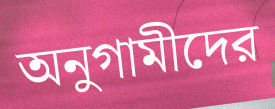
অনুগামীদের